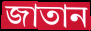
জাতান